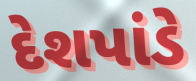
દેશપાંડે